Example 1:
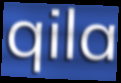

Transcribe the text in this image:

qila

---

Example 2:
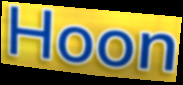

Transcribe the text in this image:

Hoon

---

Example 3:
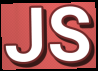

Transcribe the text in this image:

JS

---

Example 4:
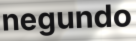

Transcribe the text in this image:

negundo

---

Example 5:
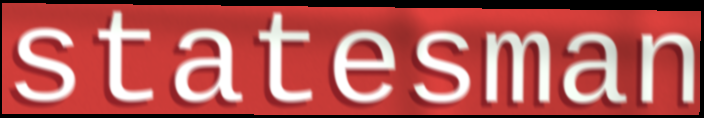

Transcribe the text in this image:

statesman